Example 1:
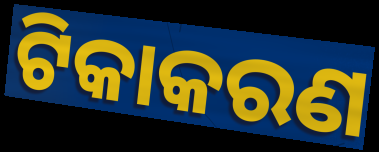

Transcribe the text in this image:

ଟିକାକରଣ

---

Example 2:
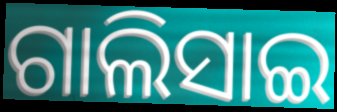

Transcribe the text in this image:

ଗାଲିସାଇ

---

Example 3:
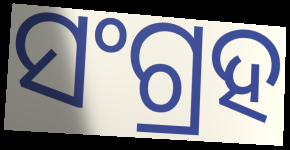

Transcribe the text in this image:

ସଂଗ୍ରହ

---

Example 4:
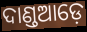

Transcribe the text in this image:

ଦାଣ୍ଡଆଡ଼େ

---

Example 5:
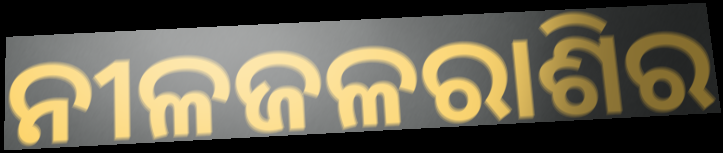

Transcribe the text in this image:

ନୀଳଜଳରାଶିର